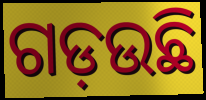
ଗଡ଼ଉଛି